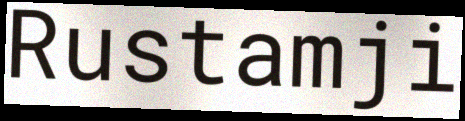
Rustamji